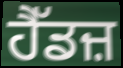
ਹੈੱਡਜ਼